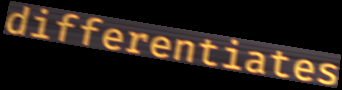
differentiates